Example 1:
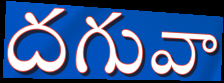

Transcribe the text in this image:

దగువా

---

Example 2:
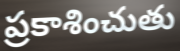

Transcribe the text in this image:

ప్రకాశించుతు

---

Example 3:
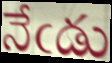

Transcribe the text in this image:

నేఁడు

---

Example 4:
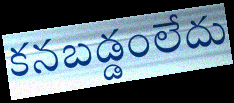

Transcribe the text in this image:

కనబడ్డంలేదు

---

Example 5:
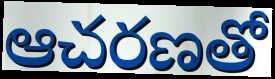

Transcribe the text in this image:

ఆచరణతో